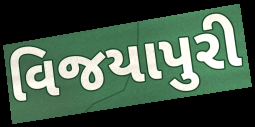
વિજયાપુરી